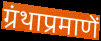
ग्रंथाप्रमाणें